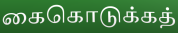
கைகொடுக்கத்